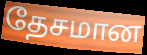
தேசமான